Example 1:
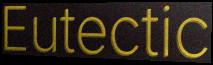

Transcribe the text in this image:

Eutectic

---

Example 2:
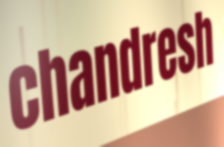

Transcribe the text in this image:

chandresh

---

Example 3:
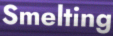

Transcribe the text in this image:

Smelting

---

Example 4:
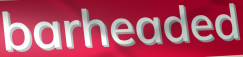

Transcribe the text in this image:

barheaded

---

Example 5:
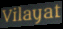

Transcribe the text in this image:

Vilayat